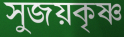
সুজয়কৃষ্ণ